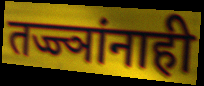
तज्ज्ञांनाही